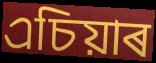
এচিয়াৰ